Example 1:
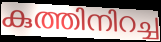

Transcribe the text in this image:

കുത്തിനിറച്ച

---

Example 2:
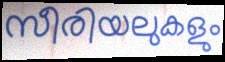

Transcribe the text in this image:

സീരിയലുകളും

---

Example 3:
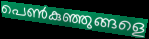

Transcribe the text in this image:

പെൺകുഞ്ഞുങ്ങളെ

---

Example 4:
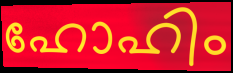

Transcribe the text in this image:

ഹോഹിം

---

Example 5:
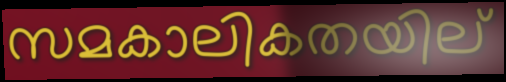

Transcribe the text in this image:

സമകാലികതയില്